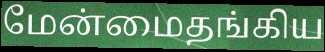
மேன்மைதங்கிய